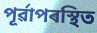
পূৰ্ৱাপৰস্থিত